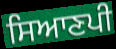
ਸਿਆਣਪੀ